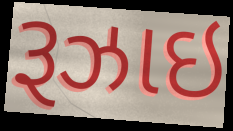
રૂઝાઇ